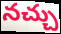
నచ్చు